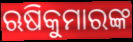
ଋଷିକୁମାରଙ୍କ